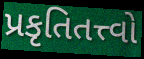
પ્રકૃતિતત્ત્વો